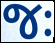
જઃ